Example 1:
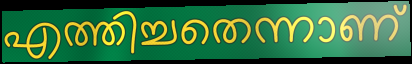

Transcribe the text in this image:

എത്തിച്ചതെന്നാണ്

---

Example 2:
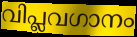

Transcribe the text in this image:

വിപ്ലവഗാനം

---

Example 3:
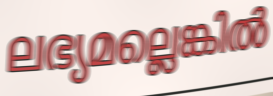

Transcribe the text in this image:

ലഭ്യമല്ലെങ്കിൽ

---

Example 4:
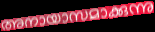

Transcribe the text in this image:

അനായാസമാക്കുന്നു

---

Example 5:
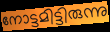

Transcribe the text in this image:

നോട്ടമിട്ടിരുന്നു